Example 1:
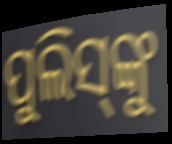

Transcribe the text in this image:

ପୁଲିସ୍‌ଙ୍କୁ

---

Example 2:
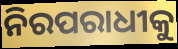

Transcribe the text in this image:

ନିରପରାଧୀକୁ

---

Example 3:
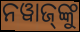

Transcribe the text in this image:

ନୱାଜ୍‍ଙ୍କୁ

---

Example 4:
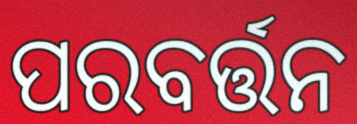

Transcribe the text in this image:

ପରବର୍ତ୍ତନ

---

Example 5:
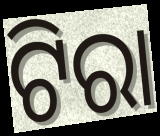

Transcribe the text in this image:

ଟିରା